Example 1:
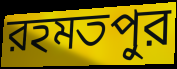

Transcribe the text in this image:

রহমতপুর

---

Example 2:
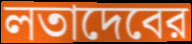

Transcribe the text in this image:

লতাদেবের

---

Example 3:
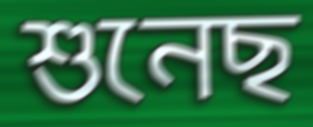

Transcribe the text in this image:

শুনেছ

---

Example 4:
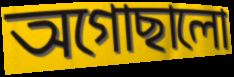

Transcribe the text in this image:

অগোছালো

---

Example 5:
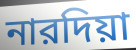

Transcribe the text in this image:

নারদিয়া